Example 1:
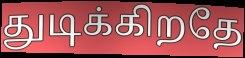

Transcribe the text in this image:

துடிக்கிறதே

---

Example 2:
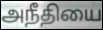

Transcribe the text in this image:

அநீதியை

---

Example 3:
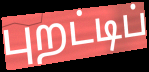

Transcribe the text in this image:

புறட்டிப்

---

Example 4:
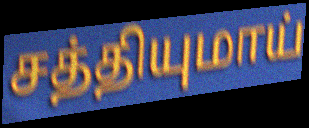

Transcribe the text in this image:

சத்தியுமாய்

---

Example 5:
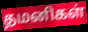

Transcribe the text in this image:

தமனிகள்